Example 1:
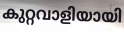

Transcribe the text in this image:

കുറ്റവാളിയായി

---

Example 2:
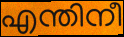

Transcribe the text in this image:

എന്തിനീ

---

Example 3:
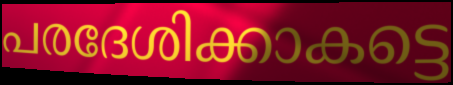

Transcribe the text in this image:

പരദേശിക്കാകട്ടെ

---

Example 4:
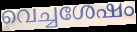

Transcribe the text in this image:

വെച്ചശേഷം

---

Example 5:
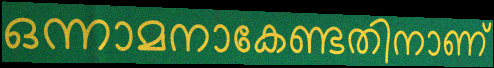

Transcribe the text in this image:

ഒന്നാമനാകേണ്ടതിനാണ്